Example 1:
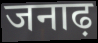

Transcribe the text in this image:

जनाढ़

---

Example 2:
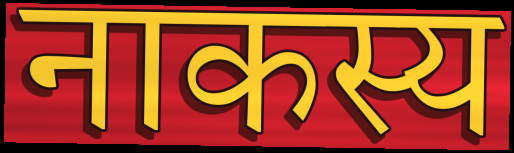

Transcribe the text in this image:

नाकस्य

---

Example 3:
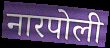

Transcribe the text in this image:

नारपोली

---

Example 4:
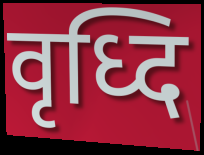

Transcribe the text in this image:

वृध्दि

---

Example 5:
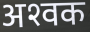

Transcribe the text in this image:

अश्वक